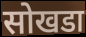
सोखडा